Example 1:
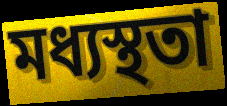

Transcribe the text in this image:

মধ্যস্থতা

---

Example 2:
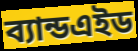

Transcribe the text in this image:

ব্যান্ডএইড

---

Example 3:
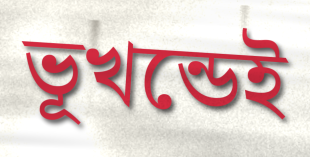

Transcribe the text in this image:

ভূখন্ডেই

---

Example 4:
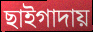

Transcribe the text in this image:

ছাইগাদায়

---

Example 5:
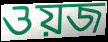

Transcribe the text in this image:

ওয়জ